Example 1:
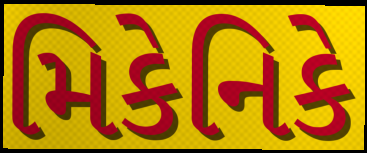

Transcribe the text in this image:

મિકેનિકે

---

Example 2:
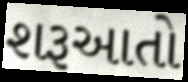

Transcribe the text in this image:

શરૂઆતો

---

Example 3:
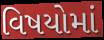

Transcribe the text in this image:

વિષયોમાં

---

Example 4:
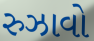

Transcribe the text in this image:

રુઝાવો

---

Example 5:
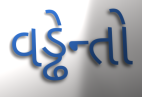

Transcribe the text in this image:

વડ્ઢેન્તો